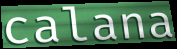
calana